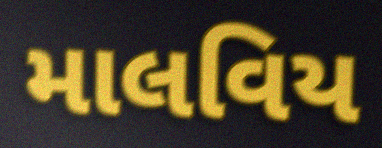
માલવિય